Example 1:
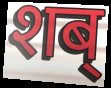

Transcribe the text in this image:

शब्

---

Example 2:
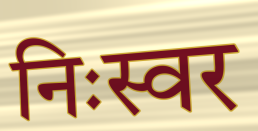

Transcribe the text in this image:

निःस्वर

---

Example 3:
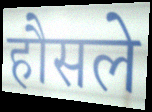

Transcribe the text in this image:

हौसले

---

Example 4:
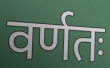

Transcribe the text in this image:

वर्णतः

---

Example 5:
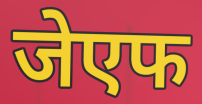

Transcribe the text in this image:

जेएफ